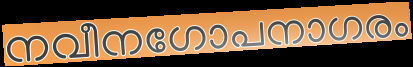
നവീനഗോപനാഗരം